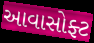
આવાસોફ્ટ